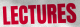
LECTURES